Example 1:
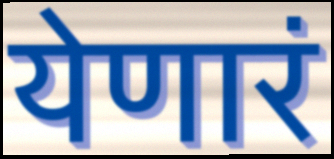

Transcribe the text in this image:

येणारं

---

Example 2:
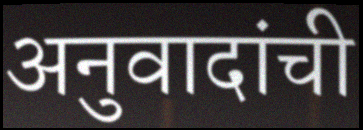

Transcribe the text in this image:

अनुवादांची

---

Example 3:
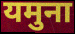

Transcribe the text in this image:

यमुना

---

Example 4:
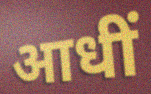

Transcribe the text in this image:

आधीं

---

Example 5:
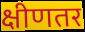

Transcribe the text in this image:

क्षीणतर